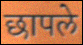
छापले